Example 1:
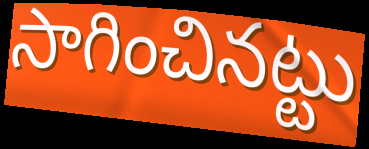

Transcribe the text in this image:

సాగించినట్టు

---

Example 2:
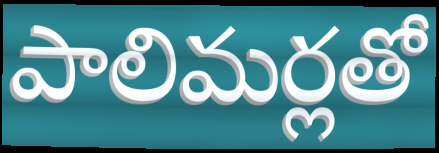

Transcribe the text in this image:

పాలిమర్లతో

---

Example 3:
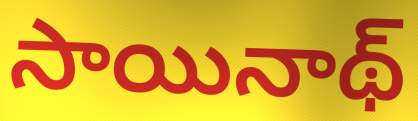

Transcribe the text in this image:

సాయినాథ్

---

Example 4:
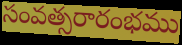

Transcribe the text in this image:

సంవత్సరారంభము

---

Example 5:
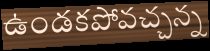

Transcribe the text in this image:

ఉండకపోవచ్చన్న